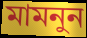
মামনুন